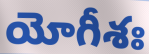
యోగీశః